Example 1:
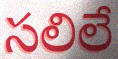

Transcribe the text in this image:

సలిలే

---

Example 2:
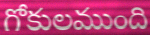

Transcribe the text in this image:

గోకులముంది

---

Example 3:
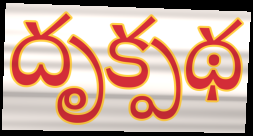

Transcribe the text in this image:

దృక్పథ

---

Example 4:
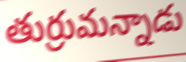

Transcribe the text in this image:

తుర్రుమన్నాడు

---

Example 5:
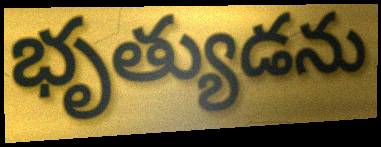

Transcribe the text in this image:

భృత్యుడను